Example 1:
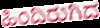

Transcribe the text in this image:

ಹಿಂದಿರುಗಿದ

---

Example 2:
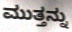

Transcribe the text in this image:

ಮುತ್ತನ್ನು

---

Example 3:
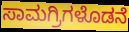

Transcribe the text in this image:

ಸಾಮಗ್ರಿಗಳೊಡನೆ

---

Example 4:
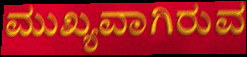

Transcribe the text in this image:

ಮುಖ್ಯವಾಗಿರುವ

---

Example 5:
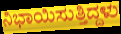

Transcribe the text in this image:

ನಿಭಾಯಿಸುತ್ತಿದ್ದಳು